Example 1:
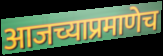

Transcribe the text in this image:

आजच्याप्रमाणेच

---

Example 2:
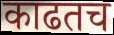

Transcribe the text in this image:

काढतच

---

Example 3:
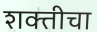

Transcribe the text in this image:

शक्तीचा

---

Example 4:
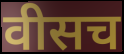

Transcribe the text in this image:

वीसच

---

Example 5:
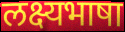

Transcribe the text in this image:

लक्ष्यभाषा